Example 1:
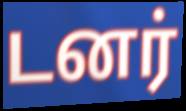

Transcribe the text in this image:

டனர்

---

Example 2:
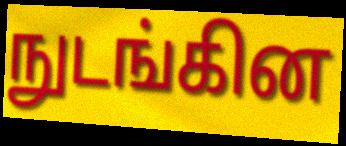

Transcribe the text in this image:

நுடங்கின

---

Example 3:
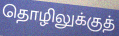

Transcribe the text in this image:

தொழிலுக்குத்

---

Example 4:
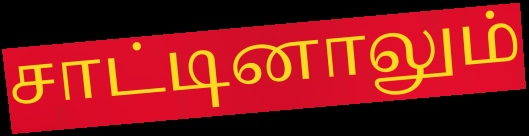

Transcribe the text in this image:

சாட்டினாலும்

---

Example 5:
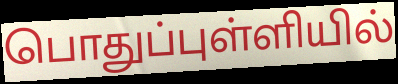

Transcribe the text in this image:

பொதுப்புள்ளியில்